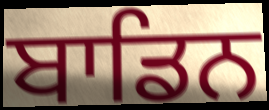
ਬਾਡਿਨ